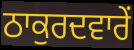
ਠਾਕੁਰਦਵਾਰੇਂ